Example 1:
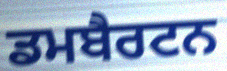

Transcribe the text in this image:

ਡਮਬੈਰਟਨ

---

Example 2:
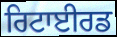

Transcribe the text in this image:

ਰਿਟਾਈਰਡ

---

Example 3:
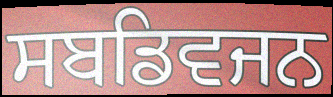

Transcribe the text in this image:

ਸਬਡਿਵਜਨ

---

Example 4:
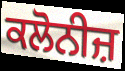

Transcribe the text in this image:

ਕਲੋਨੀਜ਼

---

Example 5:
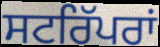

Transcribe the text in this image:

ਸਟਰਿੱਪਰਾਂ